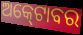
ଅକ୍‍ଟୋବର